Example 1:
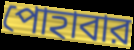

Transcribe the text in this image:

পোহাবার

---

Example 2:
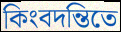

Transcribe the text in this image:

কিংবদন্তিতে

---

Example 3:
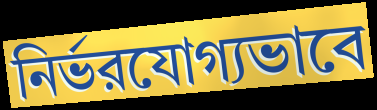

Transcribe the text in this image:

নির্ভরযোগ্যভাবে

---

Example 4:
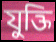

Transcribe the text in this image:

যুক্তি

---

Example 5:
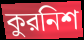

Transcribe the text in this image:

কুরনিশ